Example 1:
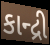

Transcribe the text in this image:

કાન્દ્રી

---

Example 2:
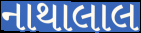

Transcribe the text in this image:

નાથાલાલ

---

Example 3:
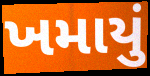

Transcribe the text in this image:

ખમાયું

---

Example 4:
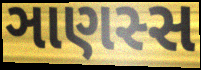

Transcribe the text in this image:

ઞાણસ્સ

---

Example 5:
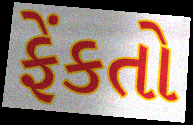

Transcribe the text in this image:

ફેંકતો